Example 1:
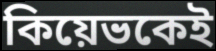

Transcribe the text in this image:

কিয়েভকেই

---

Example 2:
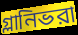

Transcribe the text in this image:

গ্লানিভরা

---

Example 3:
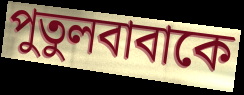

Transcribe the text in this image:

পুতুলবাবাকে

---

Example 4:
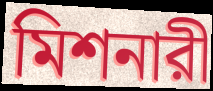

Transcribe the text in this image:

মিশনারী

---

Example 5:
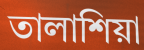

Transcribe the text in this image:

তালাশিয়া